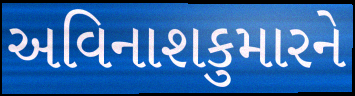
અવિનાશકુમારને